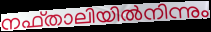
നഫ്താലിയിൽനിന്നും